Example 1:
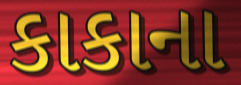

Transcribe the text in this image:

કાકાના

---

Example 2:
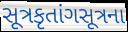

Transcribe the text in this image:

સૂત્રકૃતાંગસૂત્રના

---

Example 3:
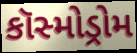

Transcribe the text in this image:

કૉસ્મોડ્રોમ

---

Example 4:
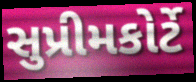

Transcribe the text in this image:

સુપ્રીમકોર્ટે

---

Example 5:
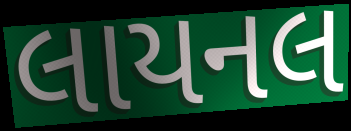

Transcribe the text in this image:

લાયનલ